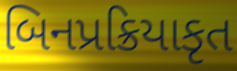
બિનપ્રક્રિયાકૃત